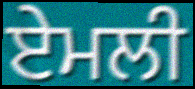
ਏਮਲੀ